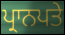
ਪ੍ਰਾਨਪਤੇ